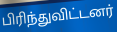
பிரிந்துவிட்டனர்